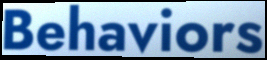
Behaviors